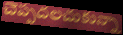
చెప్పదలచుకున్నా